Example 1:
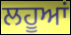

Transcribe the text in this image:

ਲਹੂਆਂ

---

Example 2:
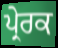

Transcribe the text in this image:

ਪ੍ਰੇਰਕ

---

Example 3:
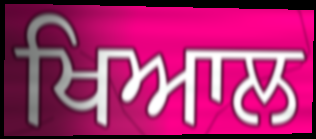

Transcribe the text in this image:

ਖਿਆਲ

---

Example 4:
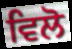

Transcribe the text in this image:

ਵਿਲੋ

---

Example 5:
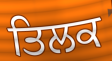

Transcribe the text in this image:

ਤਿਲਕ